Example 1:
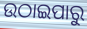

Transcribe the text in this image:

ଉଠାଇପାରୁ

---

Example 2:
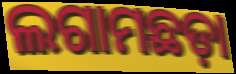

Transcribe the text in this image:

ଲଗାମଛଡ଼ା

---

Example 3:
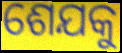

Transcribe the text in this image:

ଶେଯକୁ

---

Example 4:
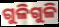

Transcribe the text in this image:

ଗୁଳିଗୁଳି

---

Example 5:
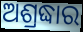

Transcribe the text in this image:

ଅଶ୍ରଦ୍ଧାର